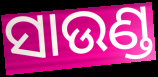
ସାଉଣ୍ଡ